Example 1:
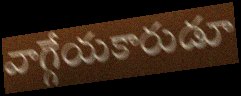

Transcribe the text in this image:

వాగ్గేయకారుడూ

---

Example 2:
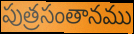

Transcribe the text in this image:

పుత్రసంతానము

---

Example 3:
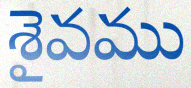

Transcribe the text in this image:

శైవము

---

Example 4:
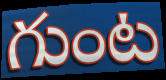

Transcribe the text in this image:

గుంట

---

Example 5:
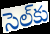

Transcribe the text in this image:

సెల్‌కు